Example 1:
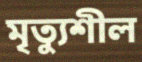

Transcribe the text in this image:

মৃত্যুশীল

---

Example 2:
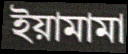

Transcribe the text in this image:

ইয়ামামা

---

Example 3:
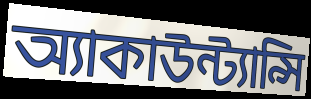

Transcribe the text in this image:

অ্যাকাউন্ট্যান্সি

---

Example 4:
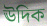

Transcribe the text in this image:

ঊদিক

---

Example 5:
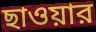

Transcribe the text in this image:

ছাওয়ার